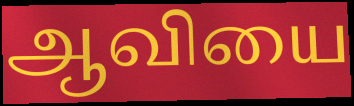
ஆவியை